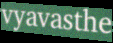
vyavasthe